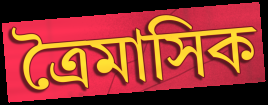
ত্রৈমাসিক